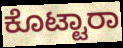
ಕೊಟ್ಟಾರಾ